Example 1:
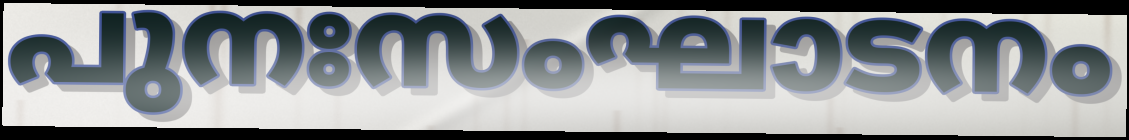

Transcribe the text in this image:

പുനഃസംഘാടനം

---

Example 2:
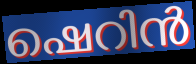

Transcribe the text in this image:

ഷെറിൻ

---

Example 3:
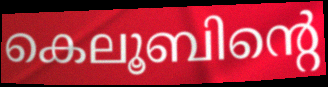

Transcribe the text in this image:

കെലൂബിന്റെ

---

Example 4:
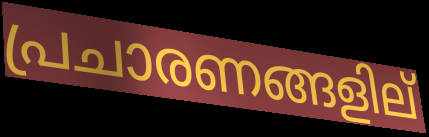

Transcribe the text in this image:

പ്രചാരണങ്ങളില്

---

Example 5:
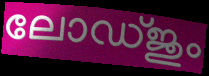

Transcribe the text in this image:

ലോഡ്ജും